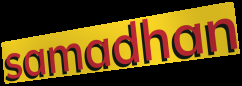
samadhan